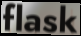
flask